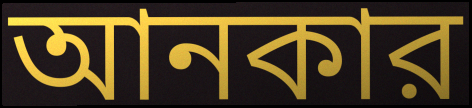
আনকার